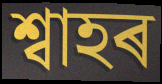
শ্বাহৰ